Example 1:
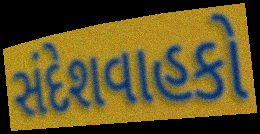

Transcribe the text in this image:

સંદેશવાહકો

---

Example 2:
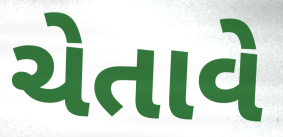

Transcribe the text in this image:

ચેતાવે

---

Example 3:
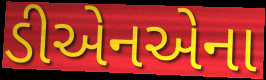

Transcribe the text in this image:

ડીએનએના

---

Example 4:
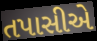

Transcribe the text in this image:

તપાસીએ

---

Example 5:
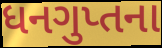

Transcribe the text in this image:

ધનગુપ્તના